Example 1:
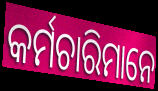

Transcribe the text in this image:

କର୍ମଚାରିମାନେ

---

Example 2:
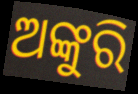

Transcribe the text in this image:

ଅଙ୍କୁରି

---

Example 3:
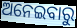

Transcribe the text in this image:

ଅନେଇବାରୁ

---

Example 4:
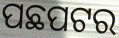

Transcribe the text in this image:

ପଛପଟର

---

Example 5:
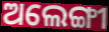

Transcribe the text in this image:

ଅଲେଙ୍ଗୀ